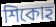
শিকোহ